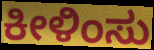
ಕೀಳಿಂಸು